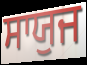
ਸਾਯੁਜ